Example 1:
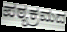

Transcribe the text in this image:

ಪಠ್ಯಕ್ರಮದ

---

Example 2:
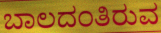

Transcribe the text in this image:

ಬಾಲದಂತಿರುವ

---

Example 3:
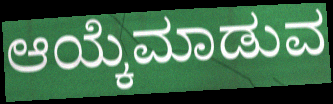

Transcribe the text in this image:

ಆಯ್ಕೆಮಾಡುವ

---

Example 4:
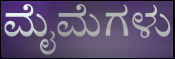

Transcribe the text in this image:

ಮೈಮೆಗಳು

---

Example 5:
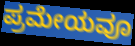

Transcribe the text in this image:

ಪ್ರಮೇಯವೂ